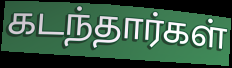
கடந்தார்கள்